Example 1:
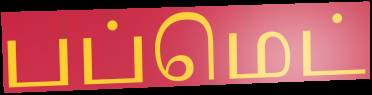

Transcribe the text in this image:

பப்மெட்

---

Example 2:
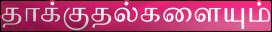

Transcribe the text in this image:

தாக்குதல்களையும்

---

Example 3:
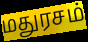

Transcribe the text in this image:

மதுரசம்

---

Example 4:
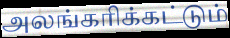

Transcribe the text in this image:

அலங்கரிக்கட்டும்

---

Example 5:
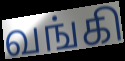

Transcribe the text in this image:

வங்கி